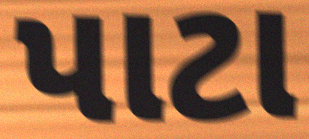
પાટા